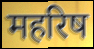
महरिष